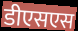
डीएसएस